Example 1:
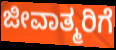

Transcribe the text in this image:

ಜೀವಾತ್ಮರಿಗೆ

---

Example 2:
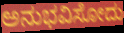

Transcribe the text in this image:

ಅನುಭವಿಸೋದು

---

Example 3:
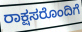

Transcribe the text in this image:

ರಾಕ್ಷಸರೊಂದಿಗೆ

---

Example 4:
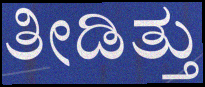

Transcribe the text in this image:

ತೀಡಿತ್ತು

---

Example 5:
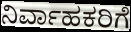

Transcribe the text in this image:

ನಿರ್ವಾಹಕರಿಗೆ